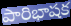
పారిభాషక